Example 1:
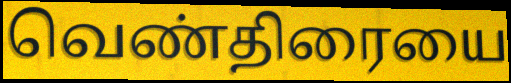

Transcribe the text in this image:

வெண்திரையை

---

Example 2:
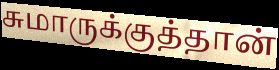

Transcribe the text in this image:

சுமாருக்குத்தான்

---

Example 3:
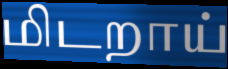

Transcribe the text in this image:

மிடறாய்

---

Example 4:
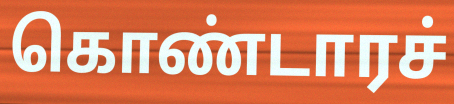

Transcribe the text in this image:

கொண்டாரச்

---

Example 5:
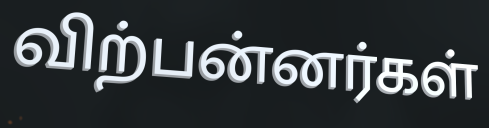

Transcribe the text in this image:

விற்பன்னர்கள்